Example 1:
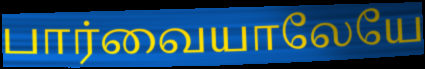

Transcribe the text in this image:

பார்வையாலேயே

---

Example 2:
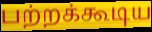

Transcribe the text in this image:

பற்றக்கூடிய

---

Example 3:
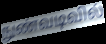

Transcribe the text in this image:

நுண்வடிவில்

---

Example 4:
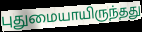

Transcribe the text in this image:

புதுமையாயிருந்தது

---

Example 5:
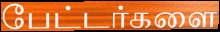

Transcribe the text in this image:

பேட்டர்களை